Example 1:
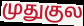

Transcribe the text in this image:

முதுகுல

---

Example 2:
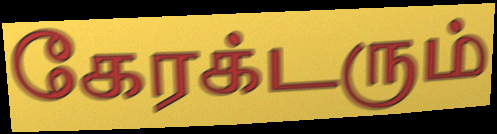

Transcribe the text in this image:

கேரக்டரும்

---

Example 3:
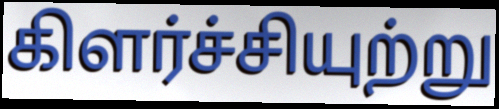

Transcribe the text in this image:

கிளர்ச்சியுற்று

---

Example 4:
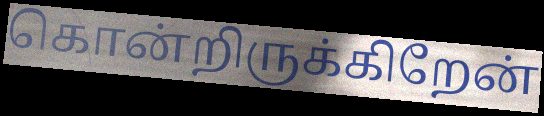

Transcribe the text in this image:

கொன்றிருக்கிறேன்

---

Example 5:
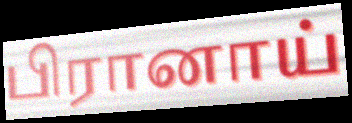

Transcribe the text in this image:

பிரானாய்